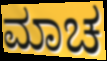
ಮಾಚ